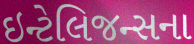
ઇન્ટેલિજન્સના